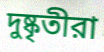
দুষ্কৃতীরা